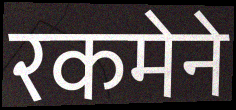
रकमेने